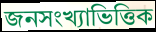
জনসংখ্যাভিত্তিক